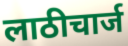
लाठीचार्ज